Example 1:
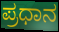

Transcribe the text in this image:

ಪ್ರಧಾನ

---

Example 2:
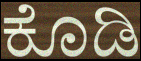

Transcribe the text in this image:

ಕೊಡಿ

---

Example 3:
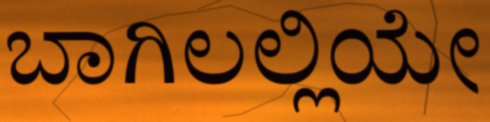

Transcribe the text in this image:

ಬಾಗಿಲಲ್ಲಿಯೇ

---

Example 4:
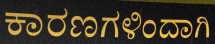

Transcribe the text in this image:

ಕಾರಣಗಳಿಂದಾಗಿ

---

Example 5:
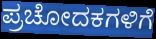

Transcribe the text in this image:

ಪ್ರಚೋದಕಗಳಿಗೆ